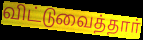
விட்டுவைத்தார்